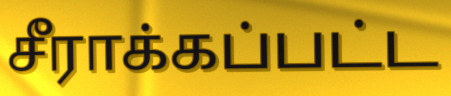
சீராக்கப்பட்ட